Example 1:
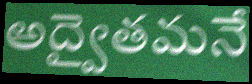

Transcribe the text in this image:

అద్వైతమనే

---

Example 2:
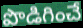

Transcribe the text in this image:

పొడిగించే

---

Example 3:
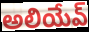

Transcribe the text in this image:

అలియేవ్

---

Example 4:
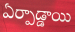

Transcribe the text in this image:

ఏర్పాడ్డాయి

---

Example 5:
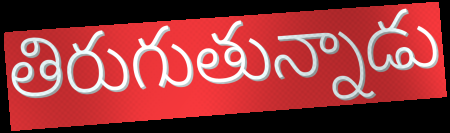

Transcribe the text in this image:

తిరుగుతున్నాడు